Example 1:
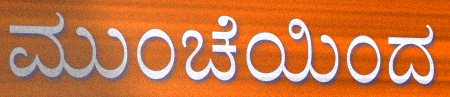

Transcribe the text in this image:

ಮುಂಚೆಯಿಂದ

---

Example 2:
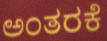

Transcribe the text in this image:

ಅಂತರಕೆ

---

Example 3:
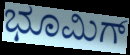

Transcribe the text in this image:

ಭೂಮಿಗ್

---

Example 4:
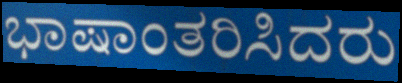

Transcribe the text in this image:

ಭಾಷಾಂತರಿಸಿದರು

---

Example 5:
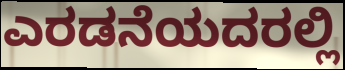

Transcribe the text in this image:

ಎರಡನೆಯದರಲ್ಲಿ